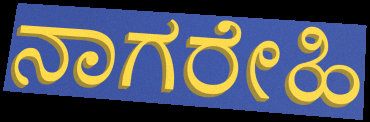
ನಾಗರೇಹಿ